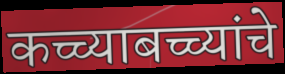
कच्च्याबच्च्यांचे